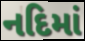
નદિમાં